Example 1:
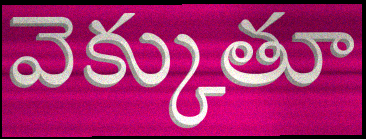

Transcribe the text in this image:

వెక్కుతూ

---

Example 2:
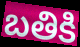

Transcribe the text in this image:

బతికి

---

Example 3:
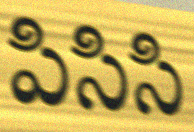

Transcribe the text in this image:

పిసిసి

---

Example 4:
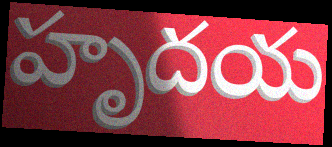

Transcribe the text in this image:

హృదయ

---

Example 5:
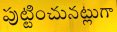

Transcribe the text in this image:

పుట్టించునట్లుగా